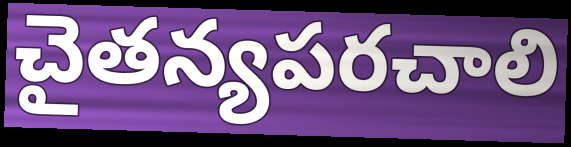
చైతన్యపరచాలి